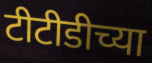
टीटीडीच्या